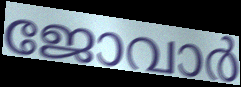
ജോവാർ